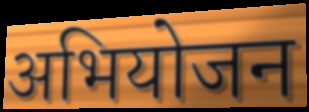
अभियोजन